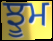
ਝੂਮ